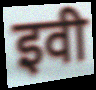
इवी